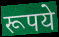
रूपये